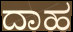
ದಾಹ